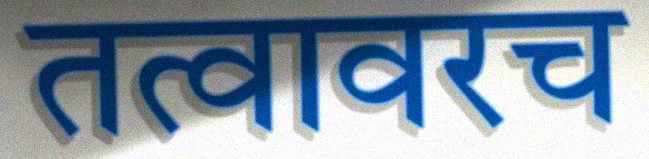
तत्वावरच